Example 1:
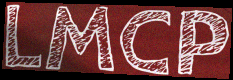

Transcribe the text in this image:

LMCP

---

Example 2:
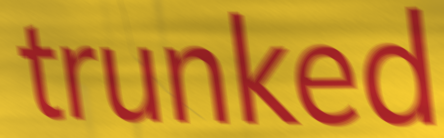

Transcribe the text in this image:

trunked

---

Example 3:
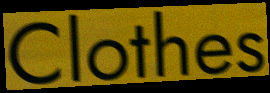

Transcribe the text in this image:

Clothes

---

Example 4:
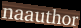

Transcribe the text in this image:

naauthor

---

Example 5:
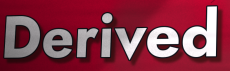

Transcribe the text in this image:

Derived